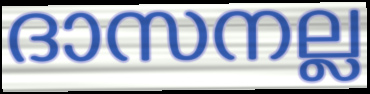
ദാസനല്ല